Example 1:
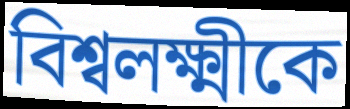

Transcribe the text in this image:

বিশ্বলক্ষ্মীকে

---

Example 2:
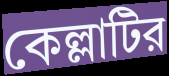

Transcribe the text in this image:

কেল্লাটির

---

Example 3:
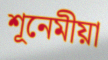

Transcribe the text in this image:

শূনেমীয়া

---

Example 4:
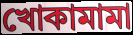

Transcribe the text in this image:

খোকামামা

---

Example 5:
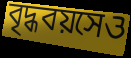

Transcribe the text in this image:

বৃদ্ধবয়সেও